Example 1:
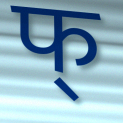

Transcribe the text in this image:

फ्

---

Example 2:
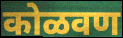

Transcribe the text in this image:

कोळवण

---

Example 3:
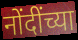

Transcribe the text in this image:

नोंदींच्या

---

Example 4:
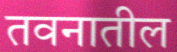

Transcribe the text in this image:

तवनातील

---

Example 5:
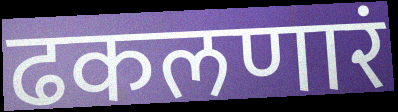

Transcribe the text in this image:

ढकलणारं